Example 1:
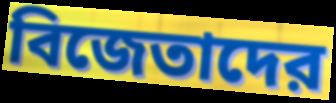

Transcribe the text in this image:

বিজেতাদের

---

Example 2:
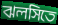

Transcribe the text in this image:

ঝলসিতে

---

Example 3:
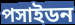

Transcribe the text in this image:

পসাইডন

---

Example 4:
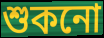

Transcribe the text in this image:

শুকনো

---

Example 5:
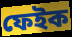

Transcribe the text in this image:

ফেইক